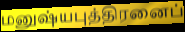
மனுஷ்யபுத்திரனைப்